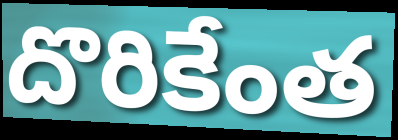
దొరికేంత